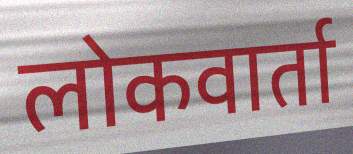
लोकवार्ता